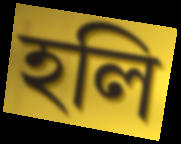
হলি